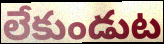
లేకుండుట